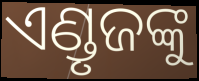
ଏଣ୍ଡୃଜଙ୍କୁ